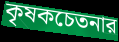
কৃষকচেতনার